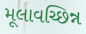
મૂલાવચ્છિન્ન